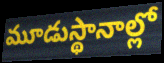
మూడుస్థానాల్లో